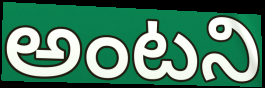
అంటని